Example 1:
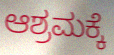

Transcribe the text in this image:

ಆಶ್ರಮಕ್ಕೆ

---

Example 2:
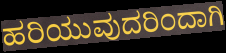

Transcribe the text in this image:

ಹರಿಯುವುದರಿಂದಾಗಿ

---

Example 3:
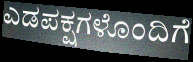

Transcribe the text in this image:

ಎಡಪಕ್ಷಗಳೊಂದಿಗೆ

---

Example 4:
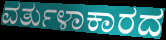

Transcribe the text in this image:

ವರ್ತುಳಾಕಾರದ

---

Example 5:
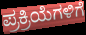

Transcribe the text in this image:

ಪ್ರಕ್ರಿಯೆಗಳಿಗೆ